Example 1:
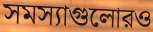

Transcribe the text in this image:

সমস্যাগুলোরও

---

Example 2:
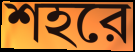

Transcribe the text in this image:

শহরে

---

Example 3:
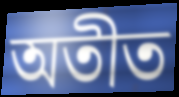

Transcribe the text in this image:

অতীত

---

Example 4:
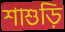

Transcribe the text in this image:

শাশুড়ি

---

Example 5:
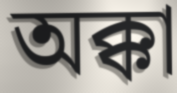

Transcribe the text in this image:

অক্কা